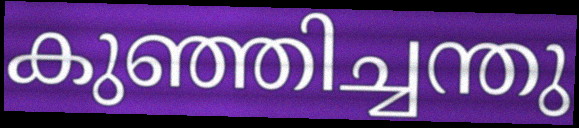
കുഞ്ഞിച്ചന്തു